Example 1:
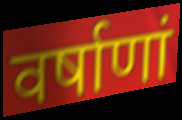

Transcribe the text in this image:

वर्षाणां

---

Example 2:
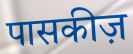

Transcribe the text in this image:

पासकीज़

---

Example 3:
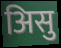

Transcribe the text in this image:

अिसु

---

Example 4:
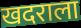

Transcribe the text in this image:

खदराला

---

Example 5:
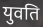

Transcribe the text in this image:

युवति